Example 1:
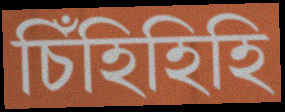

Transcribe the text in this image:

চিঁহিহিহি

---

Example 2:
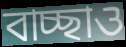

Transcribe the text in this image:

বাচ্ছাও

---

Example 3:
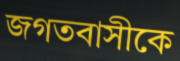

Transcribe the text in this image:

জগতবাসীকে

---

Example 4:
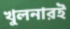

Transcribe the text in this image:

খুলনারই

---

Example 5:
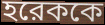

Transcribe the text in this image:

হরেককে